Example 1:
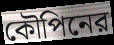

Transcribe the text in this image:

কৌপিনের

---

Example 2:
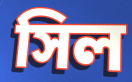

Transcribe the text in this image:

সিল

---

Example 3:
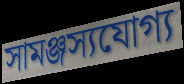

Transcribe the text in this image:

সামঞ্জস্যযোগ্য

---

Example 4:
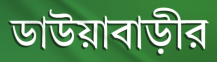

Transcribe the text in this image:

ডাউয়াবাড়ীর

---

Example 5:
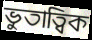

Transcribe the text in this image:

ভুতাত্বিক